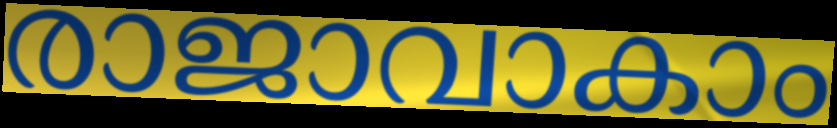
രാജാവാകാം